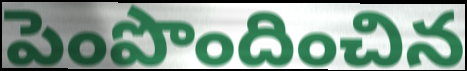
పెంపొందించిన